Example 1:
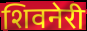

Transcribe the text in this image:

शिवनेरी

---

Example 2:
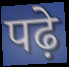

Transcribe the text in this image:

पढ़े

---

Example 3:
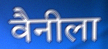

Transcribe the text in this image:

वैनीला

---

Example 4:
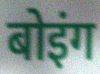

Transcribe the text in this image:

बोइंग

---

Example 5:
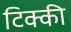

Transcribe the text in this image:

टिक्की